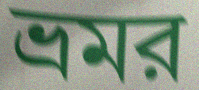
ভ্রমর